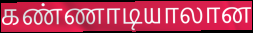
கண்ணாடியாலான